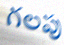
గలపు